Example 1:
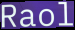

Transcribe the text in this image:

Raol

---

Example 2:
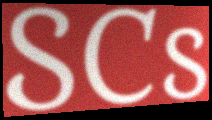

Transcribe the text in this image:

SCs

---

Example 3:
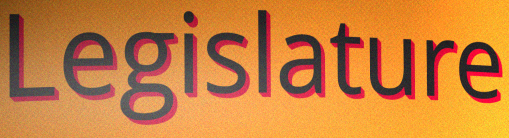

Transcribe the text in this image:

Legislature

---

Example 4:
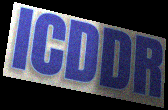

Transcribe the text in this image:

ICDDR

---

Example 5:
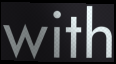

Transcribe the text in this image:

with